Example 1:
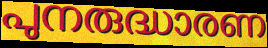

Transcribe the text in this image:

പുനരുദ്ധാരണ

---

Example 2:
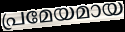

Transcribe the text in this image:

പ്രമേയമായ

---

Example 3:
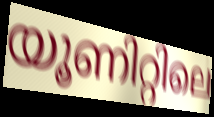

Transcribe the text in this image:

യൂണിറ്റിലെ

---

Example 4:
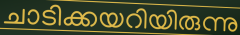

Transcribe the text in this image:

ചാടിക്കയറിയിരുന്നു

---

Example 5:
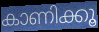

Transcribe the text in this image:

കാണിക്കൂ